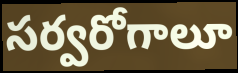
సర్వరోగాలూ